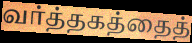
வர்த்தகத்தைத்